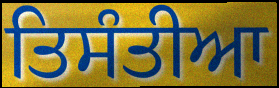
ਤਿਸੰਤੀਆ